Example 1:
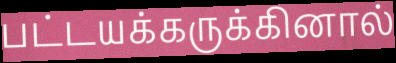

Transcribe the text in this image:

பட்டயக்கருக்கினால்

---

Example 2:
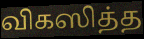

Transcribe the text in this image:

விகஸித்த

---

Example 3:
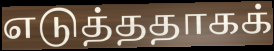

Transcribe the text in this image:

எடுத்ததாகக்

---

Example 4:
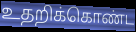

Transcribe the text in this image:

உதறிக்கொண்ட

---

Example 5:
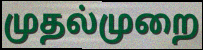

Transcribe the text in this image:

முதல்முறை